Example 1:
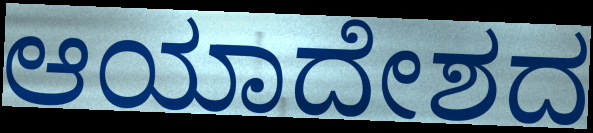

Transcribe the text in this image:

ಆಯಾದೇಶದ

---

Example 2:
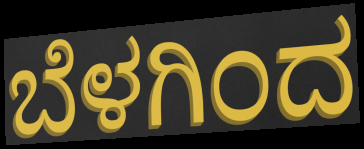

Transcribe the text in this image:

ಬೆಳಗಿಂದ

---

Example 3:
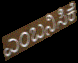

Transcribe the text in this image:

ಎಂಬನಿಸಿಕೆ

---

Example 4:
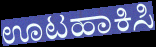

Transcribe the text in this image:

ಊಟಹಾಕಿಸಿ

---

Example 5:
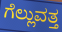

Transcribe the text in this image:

ಗೆಲ್ಲುವತ್ತ